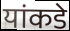
यांकडे